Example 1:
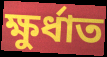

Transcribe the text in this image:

ক্ষুর্ধাত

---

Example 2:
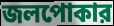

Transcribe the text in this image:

জলপোকার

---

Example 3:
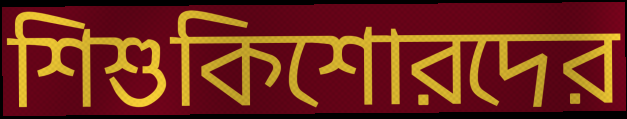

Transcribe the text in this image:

শিশুকিশোরদের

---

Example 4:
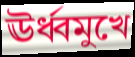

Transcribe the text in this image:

ঊর্ধ্বমুখে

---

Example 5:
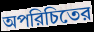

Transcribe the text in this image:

অপরিচিতের